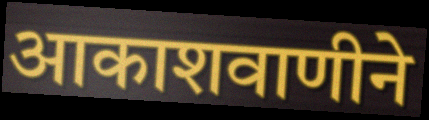
आकाशवाणीने